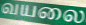
வயலை